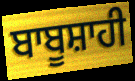
ਬਾਬੂਸ਼ਾਹੀ